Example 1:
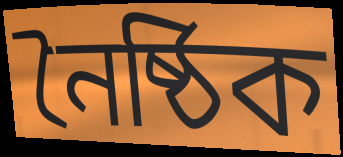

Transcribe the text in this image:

নৈষ্ঠিক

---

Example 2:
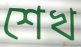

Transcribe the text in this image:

শেখ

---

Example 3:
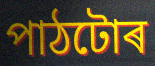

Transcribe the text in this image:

পাঠটোৰ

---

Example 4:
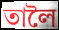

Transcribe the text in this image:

তালৈ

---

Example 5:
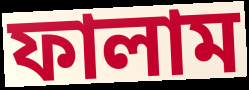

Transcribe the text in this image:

ফালাম